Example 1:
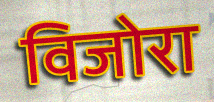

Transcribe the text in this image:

विजोरा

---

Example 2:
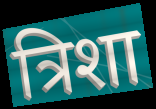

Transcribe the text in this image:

त्रिशा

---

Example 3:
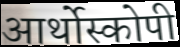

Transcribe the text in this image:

आर्थोस्कोपी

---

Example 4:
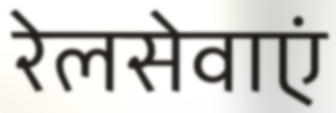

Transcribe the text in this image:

रेलसेवाएं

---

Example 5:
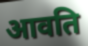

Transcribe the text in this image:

आवति